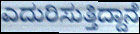
ಎದುರಿಸುತ್ತಿದ್ದಾನೆ